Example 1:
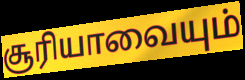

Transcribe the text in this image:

சூரியாவையும்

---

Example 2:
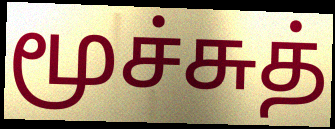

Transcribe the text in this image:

மூச்சுத்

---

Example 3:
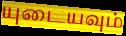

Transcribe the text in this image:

யுடையவும்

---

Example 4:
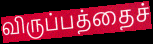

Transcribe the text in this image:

விருப்பத்தைச்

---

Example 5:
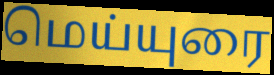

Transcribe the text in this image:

மெய்யுரை